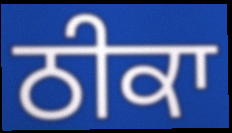
ਠੀਕਾ